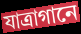
যাত্রাগানে